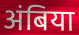
अंबिया